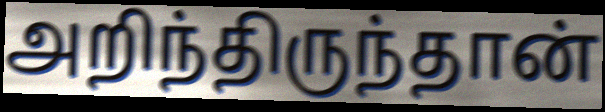
அறிந்திருந்தான்